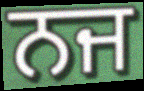
ਨਜ